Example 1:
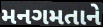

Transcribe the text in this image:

મનગમતાને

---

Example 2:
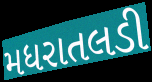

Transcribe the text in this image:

મધરાતલડી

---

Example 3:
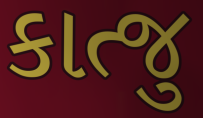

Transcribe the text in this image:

કાત્જુ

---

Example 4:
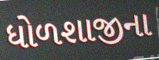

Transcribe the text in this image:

ધોળશાજીના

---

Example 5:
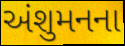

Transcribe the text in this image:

અંશુમનના